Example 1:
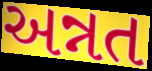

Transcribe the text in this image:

અન્નત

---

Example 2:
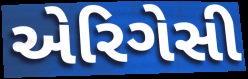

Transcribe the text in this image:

એરિગેસી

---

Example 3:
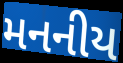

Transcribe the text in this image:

મનનીય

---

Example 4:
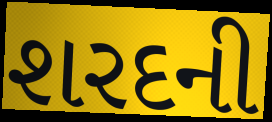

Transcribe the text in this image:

શરદની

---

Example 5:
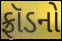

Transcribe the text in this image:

ફ્રૉડનો